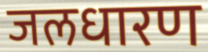
जलधारण